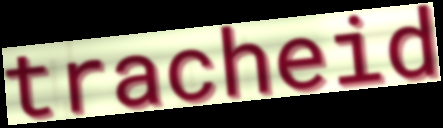
tracheid